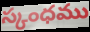
స్కంధము